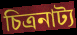
চিত্ৰনাট্য